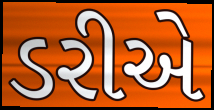
ડરીએ